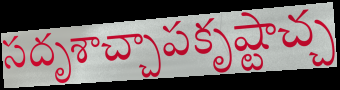
సదృశాచ్చాపకృష్టాచ్చ